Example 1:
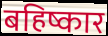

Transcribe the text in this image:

बहिष्‍कार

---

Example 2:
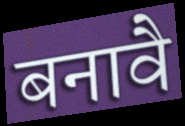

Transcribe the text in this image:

बनावै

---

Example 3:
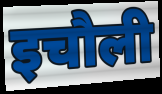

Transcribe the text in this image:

इचौली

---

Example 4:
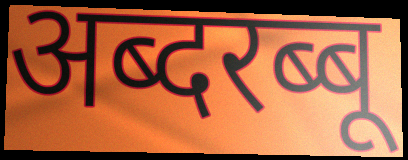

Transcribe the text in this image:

अब्दरब्बू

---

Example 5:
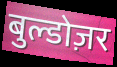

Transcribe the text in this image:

बुल्डोज़र